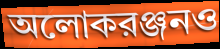
অলোকরঞ্জনও